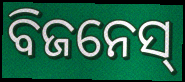
ବିଜନେସ୍